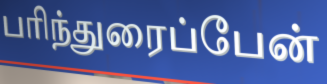
பரிந்துரைப்பேன்